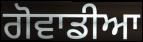
ਗੋਵਾਡੀਆ